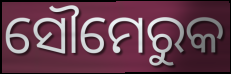
ସୌମେରୁକ